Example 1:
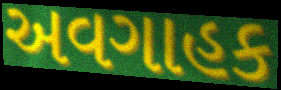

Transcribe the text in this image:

અવગાહક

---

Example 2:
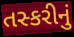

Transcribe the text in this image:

તસ્કરીનું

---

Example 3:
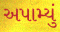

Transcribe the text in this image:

અપામ્યું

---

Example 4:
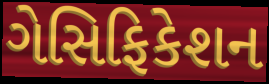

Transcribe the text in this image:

ગેસિફિકેશન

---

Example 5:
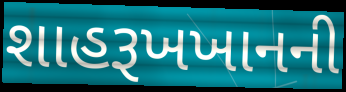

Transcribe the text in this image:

શાહરૂખખાનની